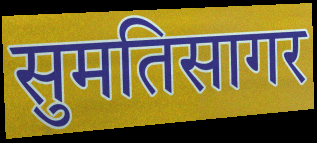
सुमतिसागर